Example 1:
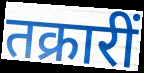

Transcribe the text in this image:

तक्रारीं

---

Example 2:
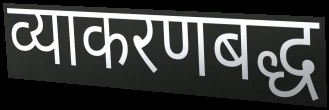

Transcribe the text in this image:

व्याकरणबद्ध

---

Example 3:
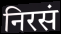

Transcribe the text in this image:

निरसं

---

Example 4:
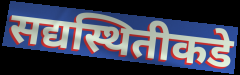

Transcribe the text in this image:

सद्यस्थितीकडे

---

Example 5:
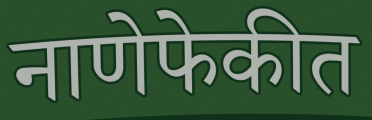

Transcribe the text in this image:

नाणेफेकीत